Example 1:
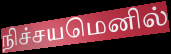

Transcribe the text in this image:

நிச்சயமெனில்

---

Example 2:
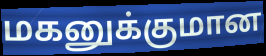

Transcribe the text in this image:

மகனுக்குமான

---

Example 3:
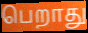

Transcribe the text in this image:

பெறாது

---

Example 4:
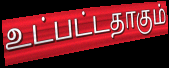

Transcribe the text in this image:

உட்பட்டதாகும்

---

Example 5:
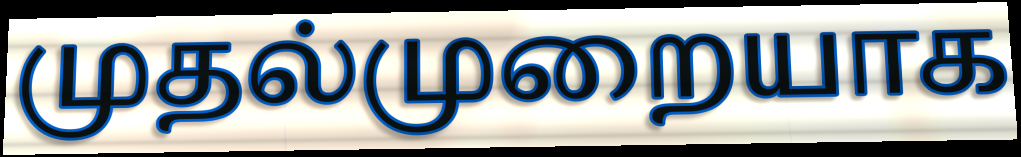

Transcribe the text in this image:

முதல்முறையாக